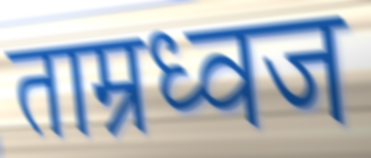
ताम्रध्वज